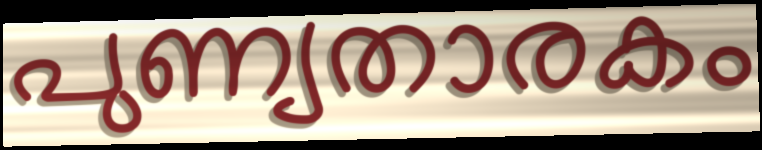
പുണ്യതാരകം